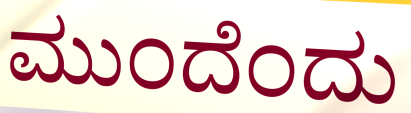
ಮುಂದೆಂದು